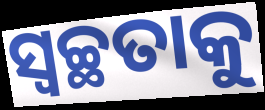
ସ୍ବଚ୍ଛତାକୁ